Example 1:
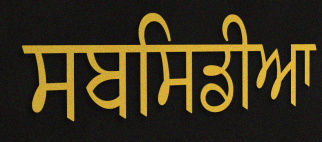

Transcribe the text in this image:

ਸਬਸਿਡੀਆ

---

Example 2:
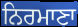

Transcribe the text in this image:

ਨਿਰਮਾਣਾ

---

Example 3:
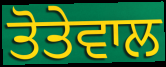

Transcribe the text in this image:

ਤੋਤੇਵਾਲ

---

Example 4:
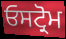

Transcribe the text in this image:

ਓਸਟ੍ਰੋਮ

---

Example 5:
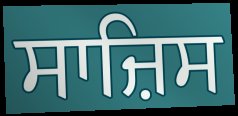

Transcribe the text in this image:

ਸਾਜ਼ਿਸ